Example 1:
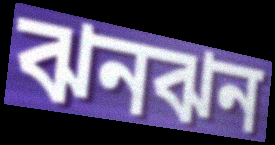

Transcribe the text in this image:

ঝনঝন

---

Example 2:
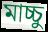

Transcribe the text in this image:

মাচ্চু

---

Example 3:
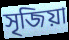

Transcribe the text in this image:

সৃজিয়া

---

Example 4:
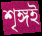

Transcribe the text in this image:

শৃঙ্গই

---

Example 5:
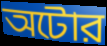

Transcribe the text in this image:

অটোর